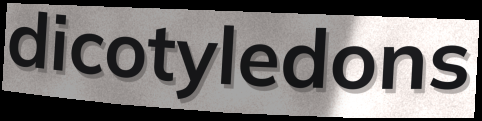
dicotyledons